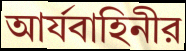
আর্যবাহিনীর